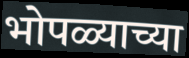
भोपळ्याच्या